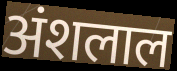
अंशलाल